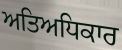
ਅਤਿਅਧਿਕਾਰ